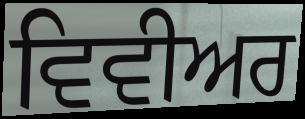
ਵਿਵੀਅਰ